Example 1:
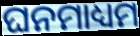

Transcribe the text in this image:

ଘନମାଧ୍ୟମ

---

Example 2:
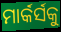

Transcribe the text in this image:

ମାର୍କର୍ସକୁ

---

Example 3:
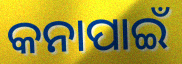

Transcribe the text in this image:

କନାପାଇଁ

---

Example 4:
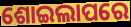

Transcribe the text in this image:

ଶୋଇଲାପରେ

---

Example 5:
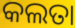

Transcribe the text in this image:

କଲତା